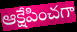
ఆక్షేపించగా